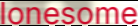
lonesome